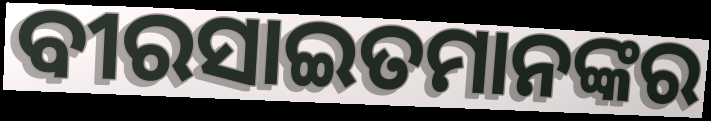
ବୀରସାଇତମାନଙ୍କର